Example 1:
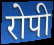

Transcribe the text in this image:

रोपी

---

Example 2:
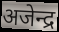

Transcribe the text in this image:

अजेन्द्र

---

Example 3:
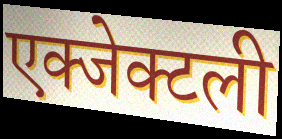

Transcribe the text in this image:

एक्जेक्टली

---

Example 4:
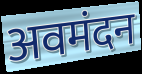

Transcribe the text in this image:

अवमंदन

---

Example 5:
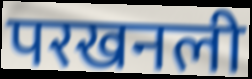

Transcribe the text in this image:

परखनली